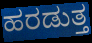
ಹರಡುತ್ತ